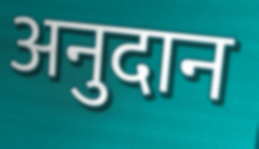
अनुदान